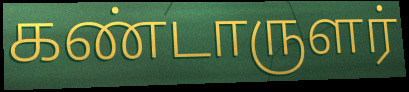
கண்டாருளர்